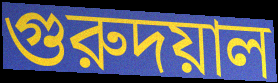
গুরুদয়াল